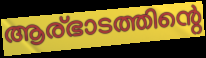
ആര്ഭാടത്തിന്റെ